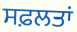
ਸਫ਼ਲਤਾਂ